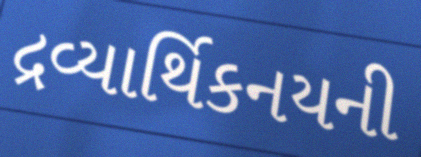
દ્રવ્યાર્થિકનયની